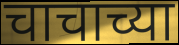
चाचाच्या